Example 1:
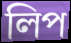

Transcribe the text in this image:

লিপ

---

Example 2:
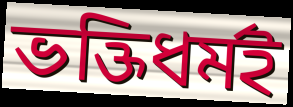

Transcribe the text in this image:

ভক্তিধৰ্মই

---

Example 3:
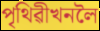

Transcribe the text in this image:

পৃথিৱীখনলৈ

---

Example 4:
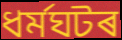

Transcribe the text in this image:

ধৰ্মঘটৰ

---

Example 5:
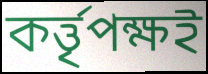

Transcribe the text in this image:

কৰ্ত্তৃপক্ষই